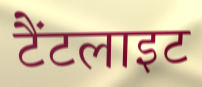
टैंटलाइट